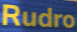
Rudro